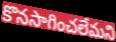
కొనసాగించలేమని